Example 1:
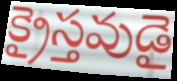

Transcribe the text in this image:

క్రైస్తవుడై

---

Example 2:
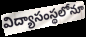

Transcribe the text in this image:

విద్యాసంస్థలోనూ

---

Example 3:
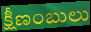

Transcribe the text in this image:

క్షీణంబులు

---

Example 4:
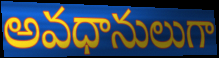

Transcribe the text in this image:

అవధానులుగా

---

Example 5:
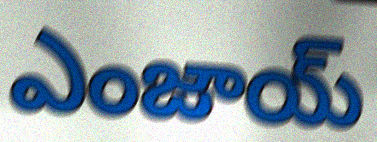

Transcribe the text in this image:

ఎంజాయ్